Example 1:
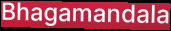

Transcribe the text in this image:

Bhagamandala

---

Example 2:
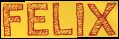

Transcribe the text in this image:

FELIX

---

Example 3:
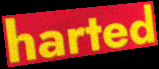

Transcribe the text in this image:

harted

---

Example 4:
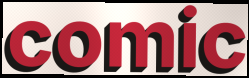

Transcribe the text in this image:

comic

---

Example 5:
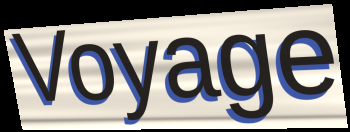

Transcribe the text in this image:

Voyage